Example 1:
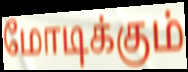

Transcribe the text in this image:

மோடிக்கும்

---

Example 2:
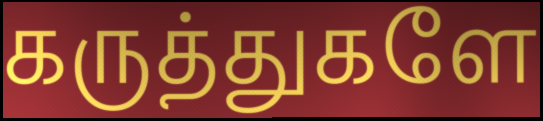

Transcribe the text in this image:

கருத்துகளே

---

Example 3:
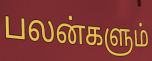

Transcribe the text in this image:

பலன்களும்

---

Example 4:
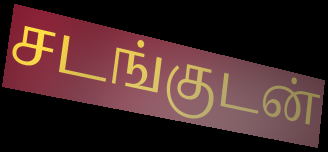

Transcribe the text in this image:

சடங்குடன்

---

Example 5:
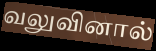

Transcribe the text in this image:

வலுவினால்